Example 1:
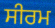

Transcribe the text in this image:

ਸੀਰਮ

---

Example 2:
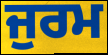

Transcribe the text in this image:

ਜੁਰਮ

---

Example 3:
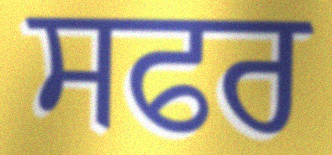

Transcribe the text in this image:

ਸਫਰ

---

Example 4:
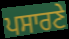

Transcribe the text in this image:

ਪਸਾਰਣੇ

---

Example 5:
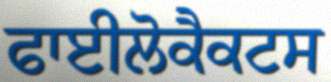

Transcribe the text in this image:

ਫਾਈਲੋਕੈਕਟਸ